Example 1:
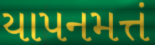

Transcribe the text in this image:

યાપનમત્તં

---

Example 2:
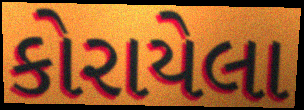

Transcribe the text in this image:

કોરાયેલા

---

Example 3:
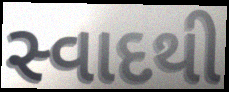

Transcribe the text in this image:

સ્વાદથી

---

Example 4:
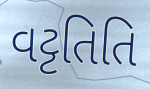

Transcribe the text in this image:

વટ્ટતિતિ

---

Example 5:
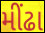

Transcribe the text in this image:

મીંઢા